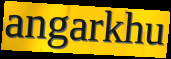
angarkhu